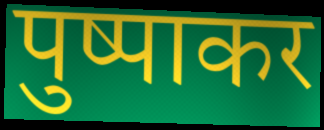
पुष्पाकर